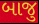
બાજુ